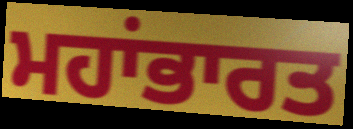
ਮਹਾਂਭਾਰਤ